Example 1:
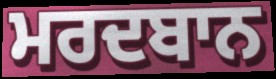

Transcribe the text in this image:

ਮਰਦਬਾਨ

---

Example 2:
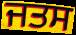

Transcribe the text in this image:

ਜਤਸ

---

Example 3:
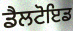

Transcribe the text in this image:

ਡੈਲਟੋਇਡ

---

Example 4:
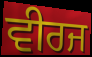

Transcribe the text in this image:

ਵੀਰਜ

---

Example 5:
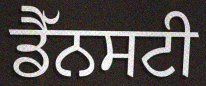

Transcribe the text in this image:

ਡੈੱਨਸਟੀ